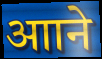
आाने